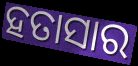
ହତାସାର